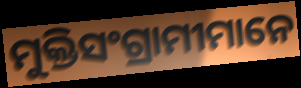
ମୁକ୍ତିସଂଗ୍ରାମୀମାନେ